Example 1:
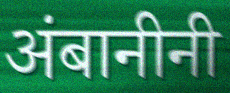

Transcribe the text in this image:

अंबानीनी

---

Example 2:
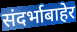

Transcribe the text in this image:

संदर्भाबाहेर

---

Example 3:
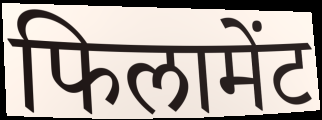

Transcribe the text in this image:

फिलामेंट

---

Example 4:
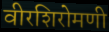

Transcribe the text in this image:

वीरशिरोमणी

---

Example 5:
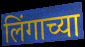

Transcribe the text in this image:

लिंगाच्या